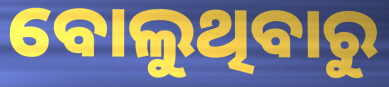
ବୋଲୁଥିବାରୁ